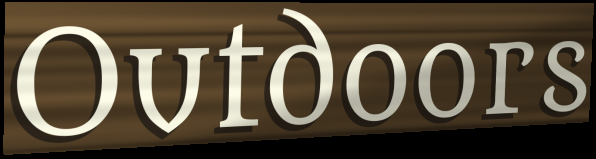
Outdoors